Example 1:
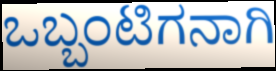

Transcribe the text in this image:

ಒಬ್ಬಂಟಿಗನಾಗಿ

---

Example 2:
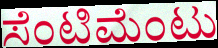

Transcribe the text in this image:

ಸೆಂಟಿಮೆಂಟು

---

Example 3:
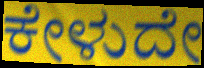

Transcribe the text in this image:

ಕೇಳುದೇ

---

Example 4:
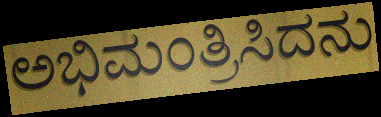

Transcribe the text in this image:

ಅಭಿಮಂತ್ರಿಸಿದನು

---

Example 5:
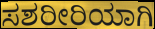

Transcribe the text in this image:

ಸಶರೀರಿಯಾಗಿ